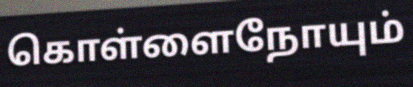
கொள்ளைநோயும்